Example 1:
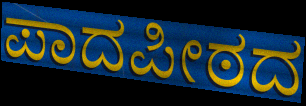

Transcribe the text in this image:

ಪಾದಪೀಠದ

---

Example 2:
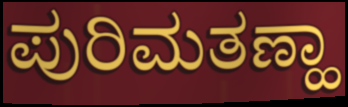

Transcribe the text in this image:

ಪುರಿಮತಣ್ಹಾ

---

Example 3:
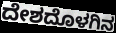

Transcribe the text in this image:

ದೇಶದೊಳಗಿನ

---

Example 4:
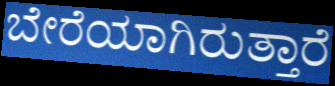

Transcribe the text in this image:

ಬೇರೆಯಾಗಿರುತ್ತಾರೆ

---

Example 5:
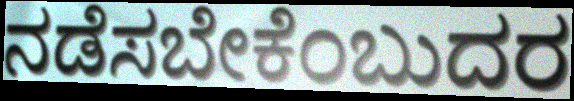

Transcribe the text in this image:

ನಡೆಸಬೇಕೆಂಬುದರ